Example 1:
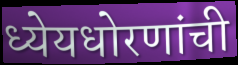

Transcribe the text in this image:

ध्येयधोरणांची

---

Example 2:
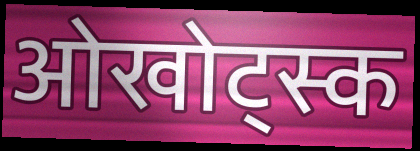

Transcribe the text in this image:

ओखोट्स्क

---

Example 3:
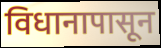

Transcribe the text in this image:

विधानापासून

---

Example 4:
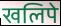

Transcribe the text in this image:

खलिपे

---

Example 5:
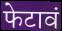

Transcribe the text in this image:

फेटावं